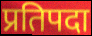
प्रतिपदा